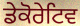
ਡੇਕੋਰੇਟਿਵ